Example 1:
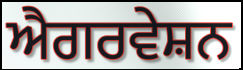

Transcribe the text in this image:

ਐਗਰਵੇਸ਼ਨ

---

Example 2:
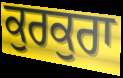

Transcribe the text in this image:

ਕੁਰਕੁਰਾ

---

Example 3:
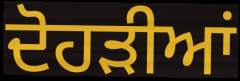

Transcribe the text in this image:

ਦੋਹੜੀਆਂ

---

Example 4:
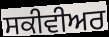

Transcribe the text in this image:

ਸਕੀਵੀਅਰ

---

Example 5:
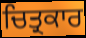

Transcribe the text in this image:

ਚਿਤ੍ਰਕਾਰ